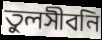
তুলসীবনি